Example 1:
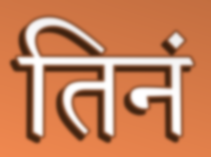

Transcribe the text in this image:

तिनं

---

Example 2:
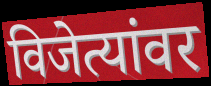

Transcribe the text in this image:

विजेत्यांवर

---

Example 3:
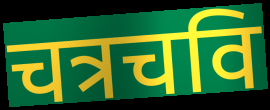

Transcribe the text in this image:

चत्रचवि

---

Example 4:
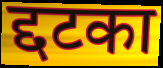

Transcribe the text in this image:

द्दटका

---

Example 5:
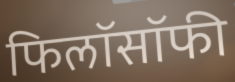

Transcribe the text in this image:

फिलॉसॉफी